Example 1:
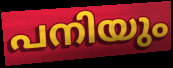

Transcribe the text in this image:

പനിയും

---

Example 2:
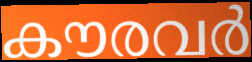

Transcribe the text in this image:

കൗരവർ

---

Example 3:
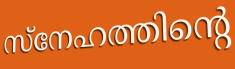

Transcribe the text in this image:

സ്നേഹത്തിന്റെ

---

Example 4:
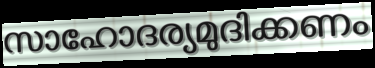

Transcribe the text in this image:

സാഹോദര്യമുദിക്കണം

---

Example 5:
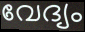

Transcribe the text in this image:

വേദ്യം